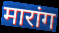
मारांग